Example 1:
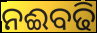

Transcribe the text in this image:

ନଈବଢି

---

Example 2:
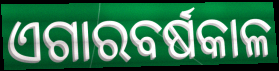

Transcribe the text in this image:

ଏଗାରବର୍ଷକାଳ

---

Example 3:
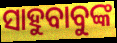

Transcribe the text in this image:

ସାହୁବାବୁଙ୍କ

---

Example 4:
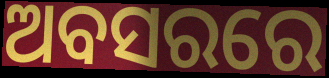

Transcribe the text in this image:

ଅବସରରେ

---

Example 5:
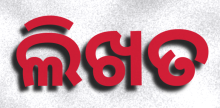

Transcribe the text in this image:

ଲିଖତ